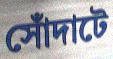
সোঁদাটে